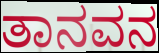
ತಾನವನ